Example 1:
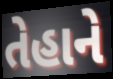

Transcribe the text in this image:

તેહાને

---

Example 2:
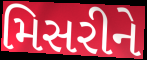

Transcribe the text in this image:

મિસરીને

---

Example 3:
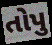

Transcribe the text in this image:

તોપુ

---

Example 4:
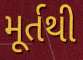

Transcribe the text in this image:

મૂર્તથી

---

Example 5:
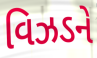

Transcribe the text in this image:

વિઝડને